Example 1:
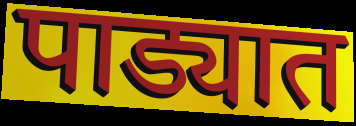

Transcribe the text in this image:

पाड्यात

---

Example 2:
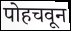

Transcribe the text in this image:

पोहचवून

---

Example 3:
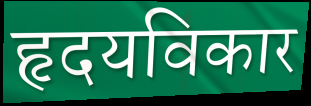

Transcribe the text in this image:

हृदयविकार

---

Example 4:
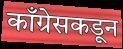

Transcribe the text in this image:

काँग्रेसकडून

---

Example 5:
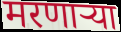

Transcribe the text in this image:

मरणार्‍या